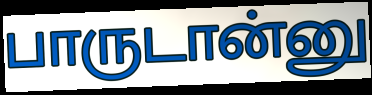
பாருடான்னு